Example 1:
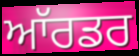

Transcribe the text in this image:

ਆੱਰਡਰ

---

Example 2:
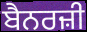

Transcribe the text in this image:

ਬੈਨਰਜ਼ੀ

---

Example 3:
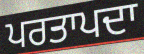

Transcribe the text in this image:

ਪਰਤਾਪਦਾ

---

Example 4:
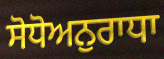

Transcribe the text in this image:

ਸੋਧੋਅਨੁਰਾਧਾ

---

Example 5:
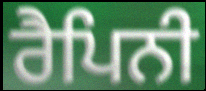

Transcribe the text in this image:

ਰੈਪਿਨੀ